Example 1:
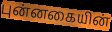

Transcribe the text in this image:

புன்னகையின்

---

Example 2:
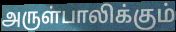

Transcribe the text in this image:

அருள்பாலிக்கும்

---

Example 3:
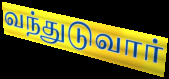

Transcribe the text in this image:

வந்துடுவார்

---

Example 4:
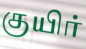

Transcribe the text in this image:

குயிர்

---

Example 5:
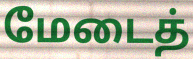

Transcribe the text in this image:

மேடைத்